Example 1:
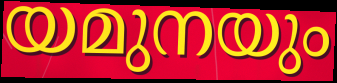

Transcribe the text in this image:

യമുനയും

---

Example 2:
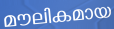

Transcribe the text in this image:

മൗലികമായ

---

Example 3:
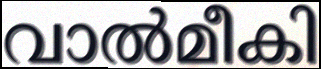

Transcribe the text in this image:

വാൽമീകി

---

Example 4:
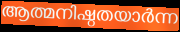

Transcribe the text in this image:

ആത്മനിഷ്ഠതയാർന്ന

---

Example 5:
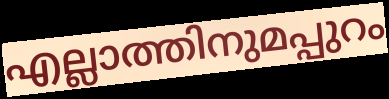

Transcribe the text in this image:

എല്ലാത്തിനുമപ്പുറം